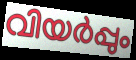
വിയർപ്പും